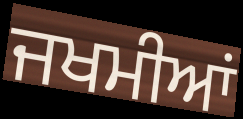
ਜਖਮੀਆਂ